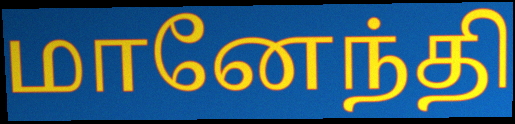
மானேந்தி